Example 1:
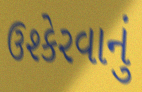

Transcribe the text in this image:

ઉશ્કેરવાનું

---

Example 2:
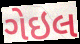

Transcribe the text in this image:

ગેઇલ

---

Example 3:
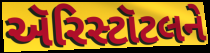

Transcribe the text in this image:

ઍરિસ્ટૉટલને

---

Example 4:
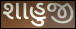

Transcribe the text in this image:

શાહુજી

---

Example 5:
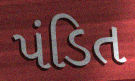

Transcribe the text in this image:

પંડિત